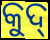
କୁଦ୍